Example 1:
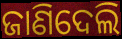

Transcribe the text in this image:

ଜାଣିଦେଲି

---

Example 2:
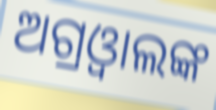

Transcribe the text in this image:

ଅଗ୍ରଓ୍ବାଲଙ୍କ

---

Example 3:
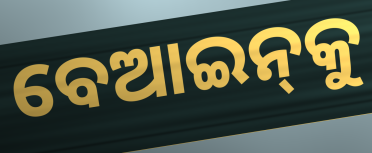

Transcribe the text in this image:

ବେଆଇନ୍‌କୁ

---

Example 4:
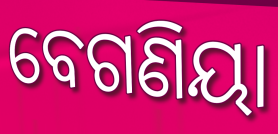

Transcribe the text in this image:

ବେଗଣିୟା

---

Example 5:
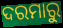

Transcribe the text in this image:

ଦରମାରୁ